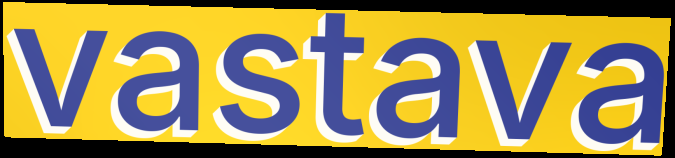
vastava